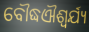
ବୌଦ୍ଧଐଶ୍ୱର୍ଯ୍ୟ